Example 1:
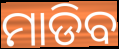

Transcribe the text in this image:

ମାଡିବ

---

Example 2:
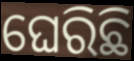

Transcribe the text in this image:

ଘେରିଛି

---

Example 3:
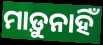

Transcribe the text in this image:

ମାଡ଼ୁନାହିଁ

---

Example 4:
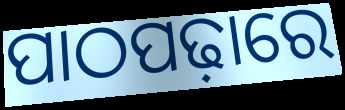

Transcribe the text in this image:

ପାଠପଢ଼ାରେ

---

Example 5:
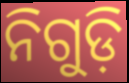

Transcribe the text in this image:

ନିଗୁଡ଼ି